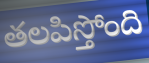
తలపిస్తోంది